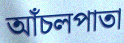
আঁচলপাতা